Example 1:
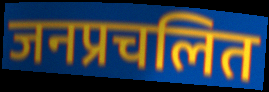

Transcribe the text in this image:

जनप्रचलित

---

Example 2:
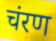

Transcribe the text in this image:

चंरण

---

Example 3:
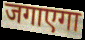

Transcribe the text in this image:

जगाएगा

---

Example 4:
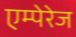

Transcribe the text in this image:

एम्पेरेज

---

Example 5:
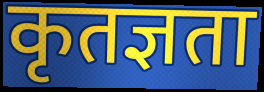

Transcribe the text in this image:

कृतज्ञता